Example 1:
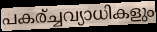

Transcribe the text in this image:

പകര്ച്ചവ്യാധികളും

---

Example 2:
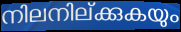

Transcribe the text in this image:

നിലനില്ക്കുകയും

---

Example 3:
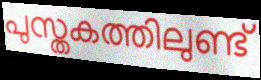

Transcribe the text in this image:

പുസ്തകത്തിലുണ്ട്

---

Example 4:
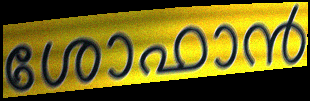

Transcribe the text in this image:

ശോഫാൻ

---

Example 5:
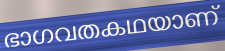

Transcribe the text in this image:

ഭാഗവതകഥയാണ്